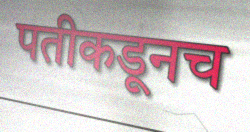
पतीकडूनच